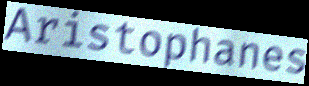
Aristophanes